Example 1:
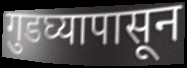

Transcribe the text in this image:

गुडघ्यापासून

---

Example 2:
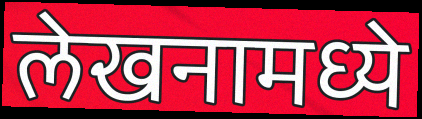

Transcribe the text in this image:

लेखनामध्ये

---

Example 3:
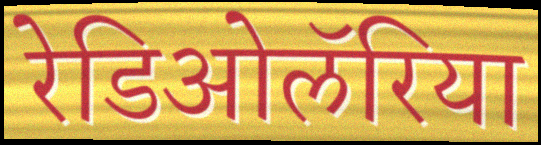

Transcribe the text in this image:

रेडिओलॅरिया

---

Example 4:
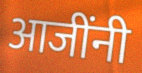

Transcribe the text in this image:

आजींनी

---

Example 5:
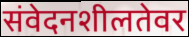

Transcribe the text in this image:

संवेदनशीलतेवर